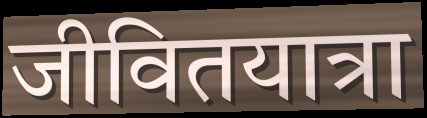
जीवितयात्रा